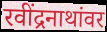
रवींद्रनाथांवर